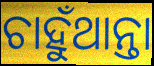
ଚାହୁଁଥାନ୍ତା